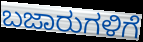
ಬಜಾರುಗಳಿಗೆ